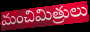
మంచిమిత్రులు